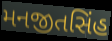
મનજીતસિંહ